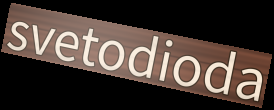
svetodioda